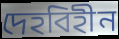
দেহবিহীন